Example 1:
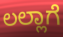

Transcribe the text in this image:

ಲಲ್ಲಾಗೆ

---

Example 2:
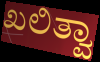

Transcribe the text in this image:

ಖಲಿತ್ವಾ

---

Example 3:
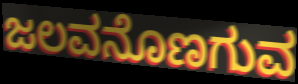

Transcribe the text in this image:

ಜಲವನೊಣಗುವ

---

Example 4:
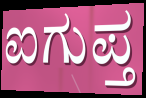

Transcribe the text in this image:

ಐಗುಪ್ತ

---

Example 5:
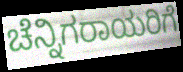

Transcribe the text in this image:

ಚೆನ್ನಿಗರಾಯರಿಗೆ